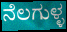
ನೆಲಗುಳ್ಳ